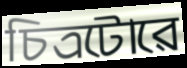
চিত্ৰটোৱে